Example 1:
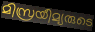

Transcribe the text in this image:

മിസ്രയീമ്യരുടെ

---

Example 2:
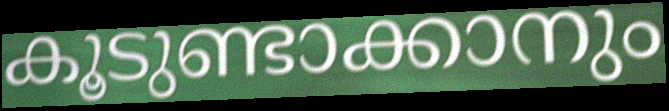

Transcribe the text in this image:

കൂടുണ്ടാക്കാനും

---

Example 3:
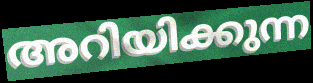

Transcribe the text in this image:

അറിയിക്കുന്ന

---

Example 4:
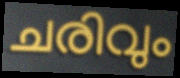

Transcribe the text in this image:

ചരിവും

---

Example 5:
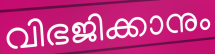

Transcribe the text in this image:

വിഭജിക്കാനും